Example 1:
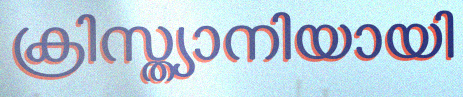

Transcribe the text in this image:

ക്രിസ്ത്യാനിയായി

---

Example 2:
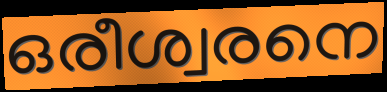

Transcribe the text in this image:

ഒരീശ്വരനെ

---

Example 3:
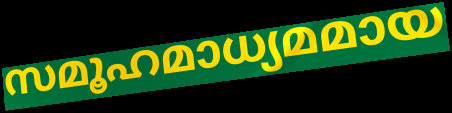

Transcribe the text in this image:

സമൂഹമാധ്യമമായ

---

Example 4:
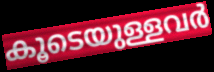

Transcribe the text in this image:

കൂടെയുള്ളവർ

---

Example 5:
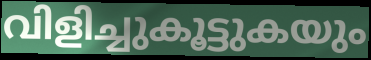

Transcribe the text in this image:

വിളിച്ചുകൂട്ടുകയും